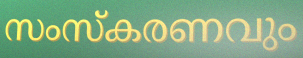
സംസ്കരണവും